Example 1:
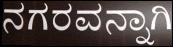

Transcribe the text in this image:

ನಗರವನ್ನಾಗಿ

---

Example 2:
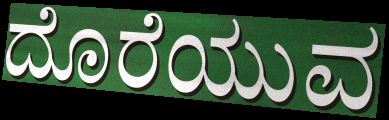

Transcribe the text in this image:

ದೊರೆಯುವ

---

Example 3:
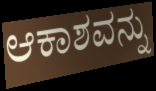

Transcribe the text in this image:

ಆಕಾಶವನ್ನು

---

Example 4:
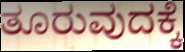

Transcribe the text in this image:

ತೂರುವುದಕ್ಕೆ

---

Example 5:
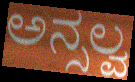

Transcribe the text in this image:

ಅನ್ಸಲ್ವ